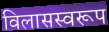
विलासस्वरूप